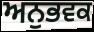
ਅਨੁਭਵਕ